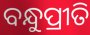
ବନ୍ଧୁପ୍ରୀତି